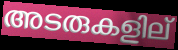
അടരുകളില്